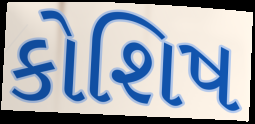
કોશિષ